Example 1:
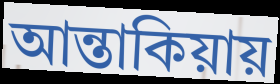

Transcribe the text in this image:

আন্তাকিয়ায়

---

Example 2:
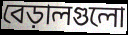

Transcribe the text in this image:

বেড়ালগুলো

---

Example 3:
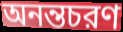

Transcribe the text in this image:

অনন্তচরণ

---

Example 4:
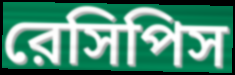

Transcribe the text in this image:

রেসিপিস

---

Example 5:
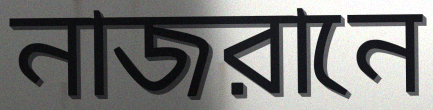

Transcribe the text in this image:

নাজরানে